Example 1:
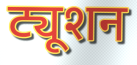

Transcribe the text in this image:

ट्यूशन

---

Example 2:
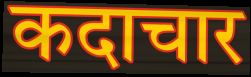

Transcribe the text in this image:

कदाचार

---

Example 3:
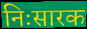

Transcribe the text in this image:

निःसारक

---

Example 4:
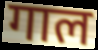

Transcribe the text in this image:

गाल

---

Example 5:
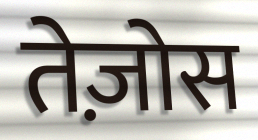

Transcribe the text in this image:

तेज़ोस